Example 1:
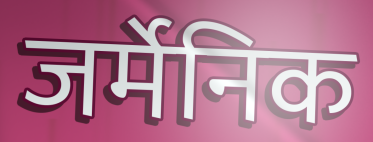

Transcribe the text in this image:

जर्मेनिक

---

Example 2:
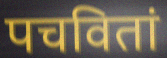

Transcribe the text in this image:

पचवितां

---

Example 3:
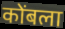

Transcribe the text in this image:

कोंबला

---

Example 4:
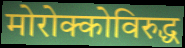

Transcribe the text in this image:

मोरोक्कोविरुद्ध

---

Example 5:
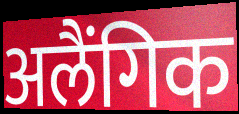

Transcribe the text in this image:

अलैंगिक